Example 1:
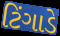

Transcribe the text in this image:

ટિંગાડે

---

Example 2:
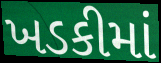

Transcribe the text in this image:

ખડકીમાં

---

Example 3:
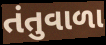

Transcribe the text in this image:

તંતુવાળા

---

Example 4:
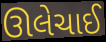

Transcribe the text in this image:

ઊલેચાઈ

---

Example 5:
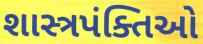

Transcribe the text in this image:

શાસ્ત્રપંક્તિઓ